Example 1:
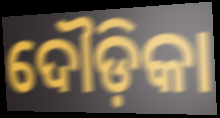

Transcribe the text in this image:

ଦୌଡ଼ିକା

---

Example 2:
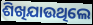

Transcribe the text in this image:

ଶିଖିଯାଉଥିଲେ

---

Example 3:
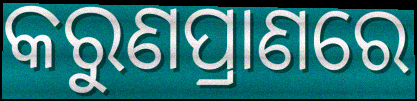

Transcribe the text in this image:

କରୁଣପ୍ରାଣରେ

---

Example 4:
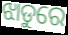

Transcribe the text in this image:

ଝାଡୁରେ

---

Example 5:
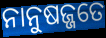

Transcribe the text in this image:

ନାନୁଷଜ୍ଜତେ